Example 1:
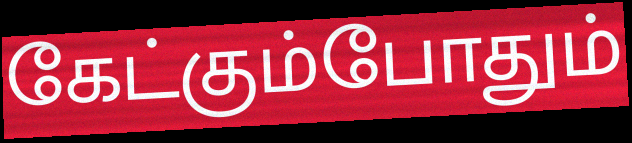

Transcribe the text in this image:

கேட்கும்போதும்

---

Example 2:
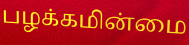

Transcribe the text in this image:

பழக்கமின்மை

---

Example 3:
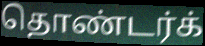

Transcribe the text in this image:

தொண்டர்க்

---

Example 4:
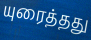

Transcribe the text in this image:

யுரைத்தது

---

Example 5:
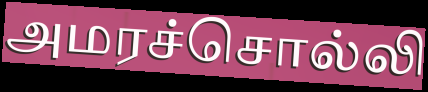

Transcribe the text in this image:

அமரச்சொல்லி